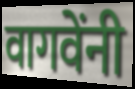
वागवेंनी